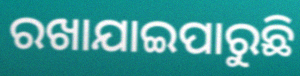
ରଖାଯାଇପାରୁଛି